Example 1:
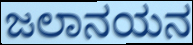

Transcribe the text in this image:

ಜಲಾನಯನ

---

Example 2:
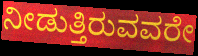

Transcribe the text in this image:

ನೀಡುತ್ತಿರುವವರೇ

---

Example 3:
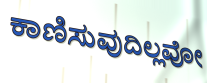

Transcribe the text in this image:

ಕಾಣಿಸುವುದಿಲ್ಲವೋ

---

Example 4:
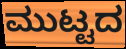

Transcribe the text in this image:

ಮುಟ್ಟದ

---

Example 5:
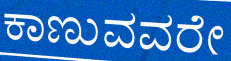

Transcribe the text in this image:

ಕಾಣುವವರೇ